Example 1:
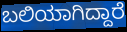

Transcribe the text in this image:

ಬಲಿಯಾಗಿದ್ದಾರೆ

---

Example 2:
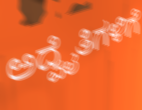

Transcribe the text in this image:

ಅದ್ವೈತಿಗಳಿಗೆ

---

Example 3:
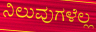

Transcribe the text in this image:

ನಿಲುವುಗಳೆಲ್ಲ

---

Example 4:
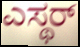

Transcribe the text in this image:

ಎಸ್ಥರ್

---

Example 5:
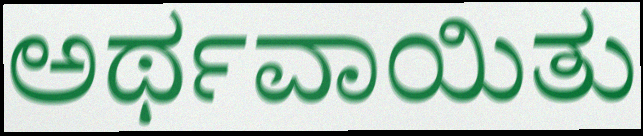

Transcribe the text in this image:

ಅರ್ಥವಾಯಿತು